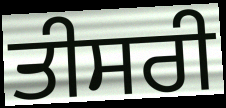
ਤੀਸਰੀ